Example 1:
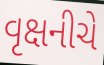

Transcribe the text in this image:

વૃક્ષનીચે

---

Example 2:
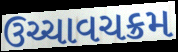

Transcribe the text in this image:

ઉચ્ચાવચક્રમ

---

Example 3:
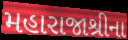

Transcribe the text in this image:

મહારાજાશ્રીના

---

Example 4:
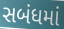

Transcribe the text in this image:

સબંધમાં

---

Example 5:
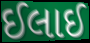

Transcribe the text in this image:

ઈલાઈ